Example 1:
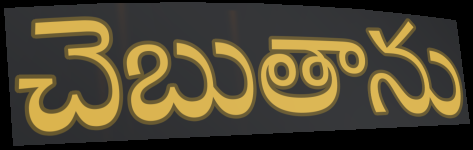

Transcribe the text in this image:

చెబుతాను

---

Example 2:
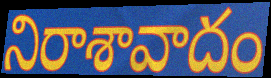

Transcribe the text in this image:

నిరాశావాదం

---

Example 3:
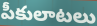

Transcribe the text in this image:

పీకులాటలు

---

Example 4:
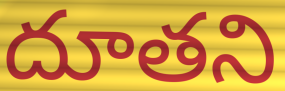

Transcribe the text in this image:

దూతని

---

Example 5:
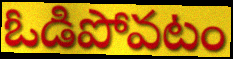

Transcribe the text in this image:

ఓడిపోవటం